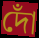
দোঁ